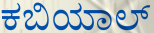
ಕಬಿಯಾಲ್